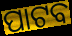
ପାଟବ